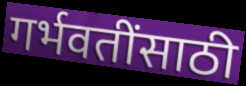
गर्भवतींसाठी